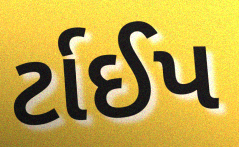
ર્ટાઈપ